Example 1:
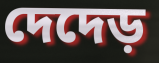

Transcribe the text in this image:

দেদেড়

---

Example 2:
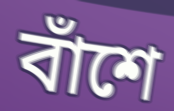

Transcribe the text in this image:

বাঁশে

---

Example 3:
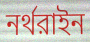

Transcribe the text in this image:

নর্থরাইন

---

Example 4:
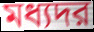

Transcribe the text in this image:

মধ্যদর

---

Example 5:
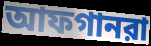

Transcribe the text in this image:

আফগানরা